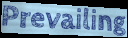
Prevailing